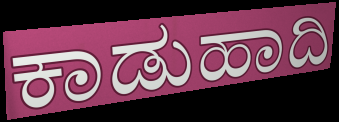
ಕಾಡುಹಾದಿ